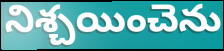
నిశ్చయించెను